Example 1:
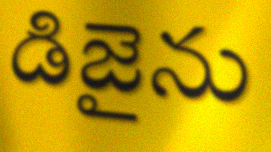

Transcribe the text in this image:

డిజైను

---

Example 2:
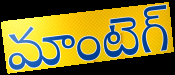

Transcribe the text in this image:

మాంటెగ్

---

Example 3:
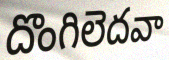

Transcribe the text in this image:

దొంగిలెదవా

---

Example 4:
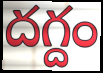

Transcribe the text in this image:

దగ్దం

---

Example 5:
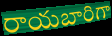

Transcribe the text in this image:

రాయబారిగా